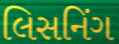
લિસનિંગ